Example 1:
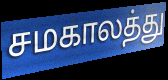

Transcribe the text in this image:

சமகாலத்து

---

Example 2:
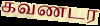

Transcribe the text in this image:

கவணடர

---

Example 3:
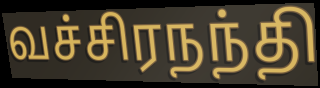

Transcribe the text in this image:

வச்சிரநந்தி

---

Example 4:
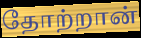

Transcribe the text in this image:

தோற்றான்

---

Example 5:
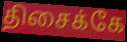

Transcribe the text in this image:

திசைக்கே